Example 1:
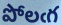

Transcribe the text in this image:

పోలఁగ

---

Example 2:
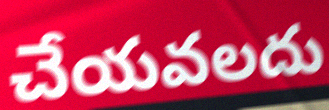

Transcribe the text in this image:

చేయవలదు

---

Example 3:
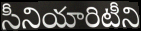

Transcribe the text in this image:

సీనియారిటీని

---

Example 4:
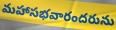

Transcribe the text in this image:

మహాసభవారందరును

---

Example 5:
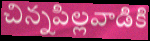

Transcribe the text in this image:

చిన్నపిల్లవాడికి